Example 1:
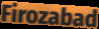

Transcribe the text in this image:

Firozabad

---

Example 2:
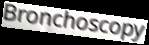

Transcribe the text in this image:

Bronchoscopy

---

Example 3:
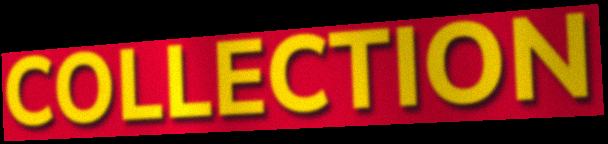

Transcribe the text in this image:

COLLECTION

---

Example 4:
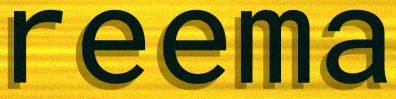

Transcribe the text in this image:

reema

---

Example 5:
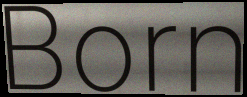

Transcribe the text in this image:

Born